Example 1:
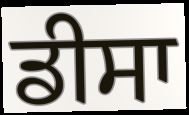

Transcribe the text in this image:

ਡੀਸਾ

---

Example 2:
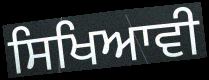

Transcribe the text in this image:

ਸਿਖਿਆਵੀ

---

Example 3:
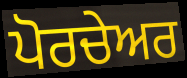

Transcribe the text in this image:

ਪੋਰਚੇਅਰ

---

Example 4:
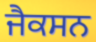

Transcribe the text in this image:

ਜੈਕਸਨ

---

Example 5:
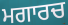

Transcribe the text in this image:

ਮਗਾਰਚ